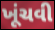
ખૂંચવી